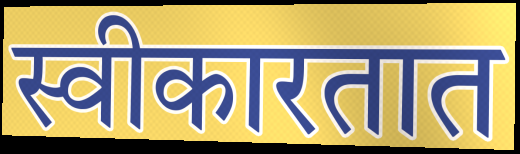
स्वीकारतात